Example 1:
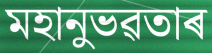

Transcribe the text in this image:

মহানুভৱতাৰ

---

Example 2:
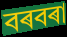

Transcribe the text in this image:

বৰবৰা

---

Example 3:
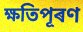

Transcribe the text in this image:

ক্ষতিপূৰণ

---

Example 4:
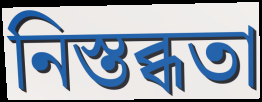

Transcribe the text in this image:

নিস্তব্ধতা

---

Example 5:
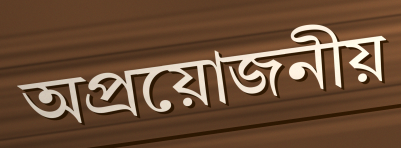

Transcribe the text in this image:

অপ্ৰয়োজনীয়